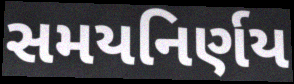
સમયનિર્ણય